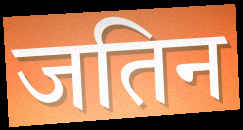
जतिन